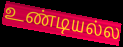
உண்டியல்ல